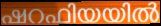
ഷറഫിയയിൽ